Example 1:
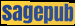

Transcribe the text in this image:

sagepub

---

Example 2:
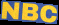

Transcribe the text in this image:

NBC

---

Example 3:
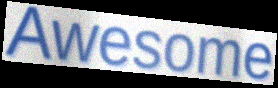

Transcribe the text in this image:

Awesome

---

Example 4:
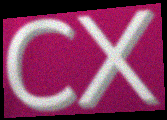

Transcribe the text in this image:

CX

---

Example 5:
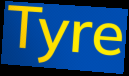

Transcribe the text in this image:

Tyre